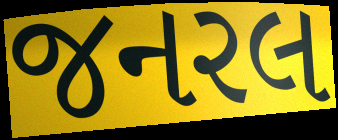
જનરલ